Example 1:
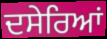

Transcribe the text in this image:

ਦਸੇਰਿਆਂ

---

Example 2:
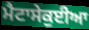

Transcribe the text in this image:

ਮੈਟਾਸੇਕੁਈਆ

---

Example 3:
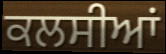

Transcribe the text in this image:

ਕਲਸੀਆਂ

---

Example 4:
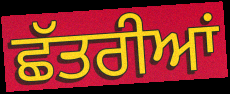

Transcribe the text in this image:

ਛੱਤਰੀਆਂ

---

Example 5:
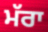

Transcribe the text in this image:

ਮੱਰਾ